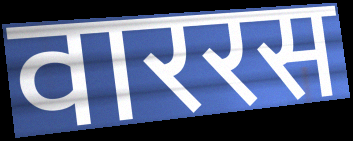
वाररस